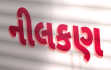
નીલકણ